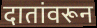
दातांवरून